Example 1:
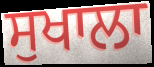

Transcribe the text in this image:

ਸੁਖਾਲਾ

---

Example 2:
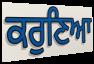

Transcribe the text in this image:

ਕਰੁਣਿਆ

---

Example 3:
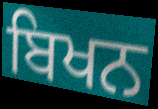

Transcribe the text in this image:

ਬਿਖਨ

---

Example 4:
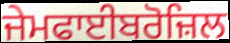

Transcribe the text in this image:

ਜੇਮਫਾਈਬਰੋਜ਼ਿਲ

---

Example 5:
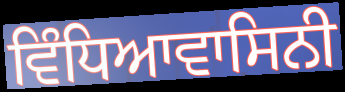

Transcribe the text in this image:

ਵਿੰਧਿਆਵਾਸਿਨੀ